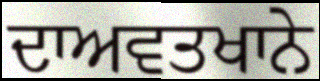
ਦਾਅਵਤਖਾਨੇ